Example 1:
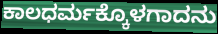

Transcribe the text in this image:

ಕಾಲಧರ್ಮಕ್ಕೊಳಗಾದನು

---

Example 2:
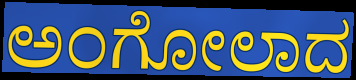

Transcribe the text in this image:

ಅಂಗೋಲಾದ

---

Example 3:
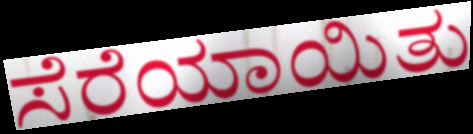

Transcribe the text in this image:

ಸೆರೆಯಾಯಿತು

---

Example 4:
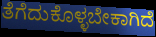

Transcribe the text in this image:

ತೆಗೆದುಕೊಳ್ಳಬೇಕಾಗಿದೆ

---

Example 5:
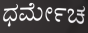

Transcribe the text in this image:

ಧರ್ಮೇಚ